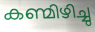
കണ്മിഴിച്ചു